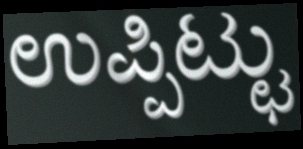
ಉಪ್ಪಿಟ್ಟು